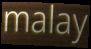
malay